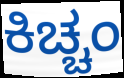
ಕಿಚ್ಚಂ